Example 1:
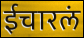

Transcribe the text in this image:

ईचारलं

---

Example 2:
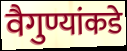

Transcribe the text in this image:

वैगुण्यांकडे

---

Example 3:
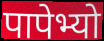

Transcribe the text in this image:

पापेभ्यो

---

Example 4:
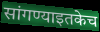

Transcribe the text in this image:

सांगण्याइतकेच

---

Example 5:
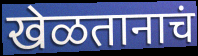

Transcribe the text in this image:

खेळतानाचं